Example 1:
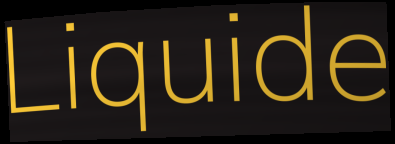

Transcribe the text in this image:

Liquide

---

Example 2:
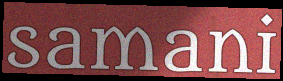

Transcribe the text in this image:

samani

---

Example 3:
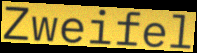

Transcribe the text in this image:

Zweifel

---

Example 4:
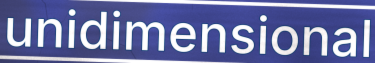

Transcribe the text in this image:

unidimensional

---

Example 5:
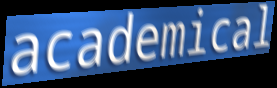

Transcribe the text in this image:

academical